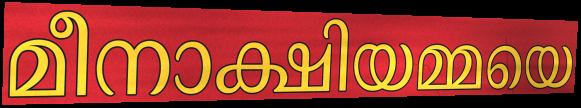
മീനാക്ഷിയമ്മയെ